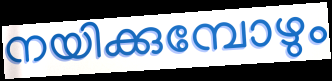
നയിക്കുമ്പോഴും